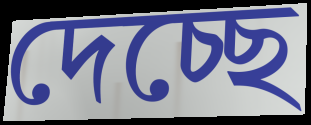
দেচ্ছে